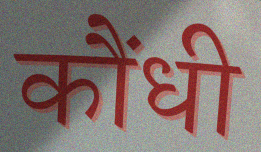
कौंधी